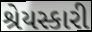
શ્રેયસ્કારી